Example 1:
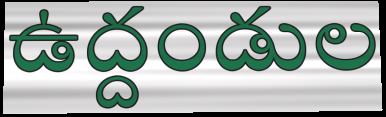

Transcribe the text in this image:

ఉద్దండుల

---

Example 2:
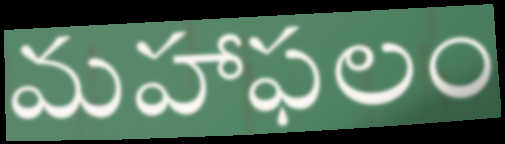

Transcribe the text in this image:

మహాఫలం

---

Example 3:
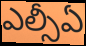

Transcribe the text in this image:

ఎల్సీఏ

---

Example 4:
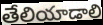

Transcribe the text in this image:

తేలియాడాలి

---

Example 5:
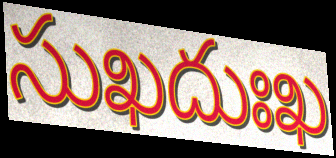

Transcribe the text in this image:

సుఖదుఃఖ